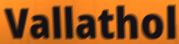
Vallathol